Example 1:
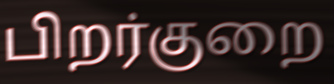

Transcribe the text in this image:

பிறர்குறை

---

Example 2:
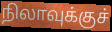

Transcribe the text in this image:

நிலாவுக்குச்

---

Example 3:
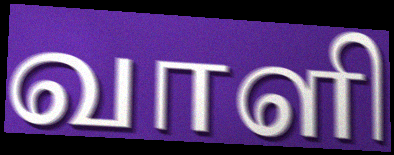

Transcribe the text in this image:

வாளி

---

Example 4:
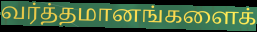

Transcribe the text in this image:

வர்த்தமானங்களைக்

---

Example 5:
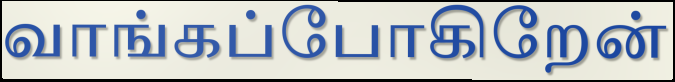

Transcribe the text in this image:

வாங்கப்போகிறேன்